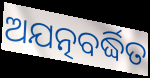
ଅଯତ୍ନବର୍ଦ୍ଧିତ